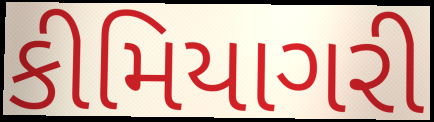
કીમિયાગરી